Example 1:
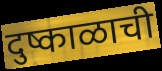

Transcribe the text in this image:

दुष्काळाची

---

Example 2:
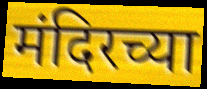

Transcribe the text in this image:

मंदिरच्या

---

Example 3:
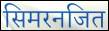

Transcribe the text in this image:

सिमरनजित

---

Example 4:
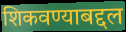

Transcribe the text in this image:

शिकवण्याबद्दल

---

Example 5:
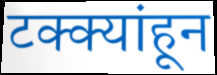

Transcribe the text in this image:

टक्क्यांहून